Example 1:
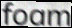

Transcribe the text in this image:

foam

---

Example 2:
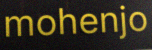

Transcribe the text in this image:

mohenjo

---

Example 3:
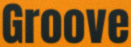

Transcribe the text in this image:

Groove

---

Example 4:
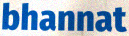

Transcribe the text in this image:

bhannat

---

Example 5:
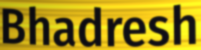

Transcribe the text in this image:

Bhadresh